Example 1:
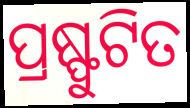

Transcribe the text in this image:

ପ୍ରଷ୍ଫୁଟିତ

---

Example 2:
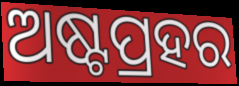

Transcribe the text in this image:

ଅଷ୍ଟପ୍ରହର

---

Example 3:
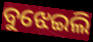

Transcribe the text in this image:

ବୁଝେଇଲି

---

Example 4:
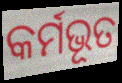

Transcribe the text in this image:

କର୍ମଭୂତ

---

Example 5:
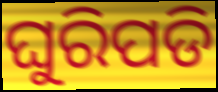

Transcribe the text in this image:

ଘୁରିପଡି